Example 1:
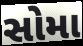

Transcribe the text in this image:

સોમા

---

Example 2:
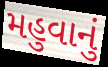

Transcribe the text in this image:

મહુવાનું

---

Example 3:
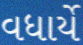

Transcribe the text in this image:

વધાર્યે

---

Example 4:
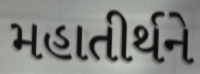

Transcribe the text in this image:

મહાતીર્થને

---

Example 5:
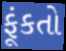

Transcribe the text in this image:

ફૂંકતો